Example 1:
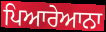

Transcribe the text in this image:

ਪਿਆਰੇਆਨਾ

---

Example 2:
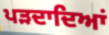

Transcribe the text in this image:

ਪੜਦਾਦਿਆਂ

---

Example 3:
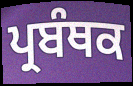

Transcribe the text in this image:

ਪ੍ਰਬੰਥਕ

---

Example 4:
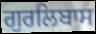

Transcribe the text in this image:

ਗੁਰਲਿਬਾਸ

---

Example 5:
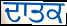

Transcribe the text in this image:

ਦਾਤਕ